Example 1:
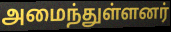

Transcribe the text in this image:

அமைந்துள்ளனர்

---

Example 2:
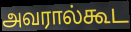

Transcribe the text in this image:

அவரால்கூட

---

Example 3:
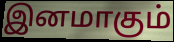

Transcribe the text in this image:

இனமாகும்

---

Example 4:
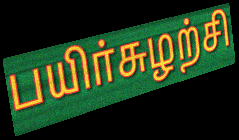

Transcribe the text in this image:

பயிர்சுழற்சி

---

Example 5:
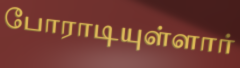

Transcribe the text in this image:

போராடியுள்ளார்